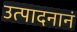
उत्पादनानं